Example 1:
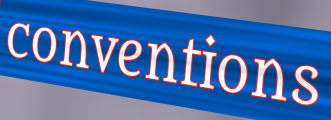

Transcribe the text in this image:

conventions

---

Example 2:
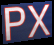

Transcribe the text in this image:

PX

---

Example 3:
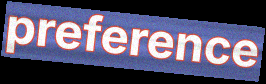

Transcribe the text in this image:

preference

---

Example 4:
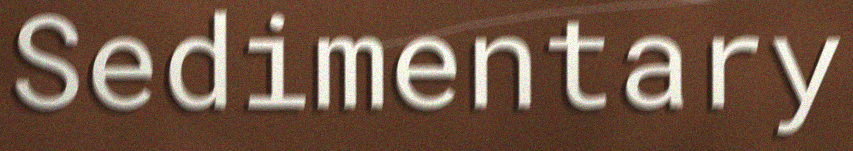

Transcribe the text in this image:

Sedimentary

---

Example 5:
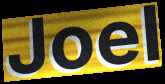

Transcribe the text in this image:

Joel